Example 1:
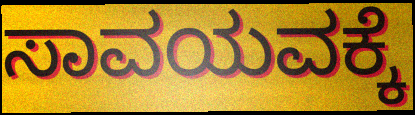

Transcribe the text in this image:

ಸಾವಯವಕ್ಕೆ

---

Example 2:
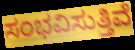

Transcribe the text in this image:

ಸಂಭವಿಸುತ್ತಿವೆ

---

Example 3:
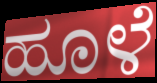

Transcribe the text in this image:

ಹೂಳೆ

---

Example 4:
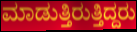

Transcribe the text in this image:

ಮಾಡುತ್ತಿರುತ್ತಿದ್ದರು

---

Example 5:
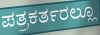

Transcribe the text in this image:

ಪತ್ರಕರ್ತರಲ್ಲೂ